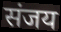
संजय